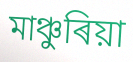
মাঞ্চুৰিয়া